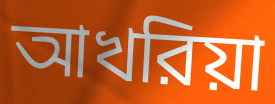
আখরিয়া